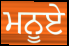
ਮਨੂਏ